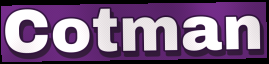
Cotman